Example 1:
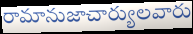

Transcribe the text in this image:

రామానుజాచార్యులవారు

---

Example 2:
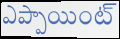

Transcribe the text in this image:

ఎప్పాయింట్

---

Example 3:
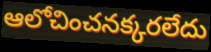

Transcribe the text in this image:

ఆలోచించనక్కరలేదు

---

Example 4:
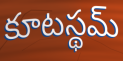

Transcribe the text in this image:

కూటస్థమ్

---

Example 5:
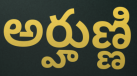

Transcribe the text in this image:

అర్హుణ్ణి